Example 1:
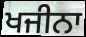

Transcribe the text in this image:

ਖਜੀਨਾ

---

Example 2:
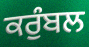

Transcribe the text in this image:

ਕਰੁੰਬਲ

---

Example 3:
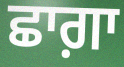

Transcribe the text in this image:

ਛਾਗ਼ਾ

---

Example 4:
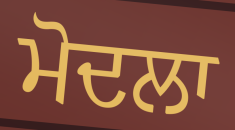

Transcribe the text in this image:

ਮੋਦਲਾ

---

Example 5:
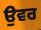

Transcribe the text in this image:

ਉਵਰ